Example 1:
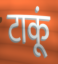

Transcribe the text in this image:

टाकूं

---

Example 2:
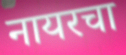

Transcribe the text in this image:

नायरचा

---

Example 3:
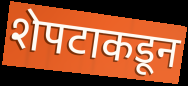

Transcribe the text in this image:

शेपटाकडून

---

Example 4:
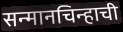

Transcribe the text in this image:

सन्मानचिन्हाची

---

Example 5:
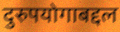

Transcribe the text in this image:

दुरुपयोगाबद्दल